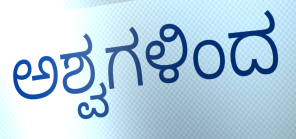
ಅಶ್ವಗಳಿಂದ